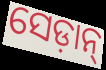
ସେଡ଼ାନ୍